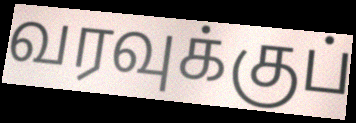
வரவுக்குப்